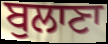
ਬੁਲਾਣਾ